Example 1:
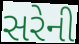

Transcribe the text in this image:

સરેની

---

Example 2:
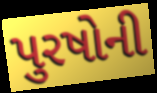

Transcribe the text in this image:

પુરષોની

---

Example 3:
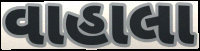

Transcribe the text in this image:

વાહાલા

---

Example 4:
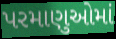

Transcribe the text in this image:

પરમાણુઓમાં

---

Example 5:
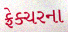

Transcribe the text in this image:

ફ્રેક્ચરના